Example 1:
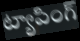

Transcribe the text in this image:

ట్యాపింగ్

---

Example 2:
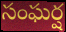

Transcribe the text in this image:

సంఘర్ష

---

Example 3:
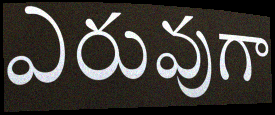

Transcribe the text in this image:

ఎరువుగా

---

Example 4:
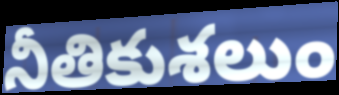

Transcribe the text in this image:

నీతికుశలుం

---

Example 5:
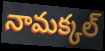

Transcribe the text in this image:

నామక్కల్